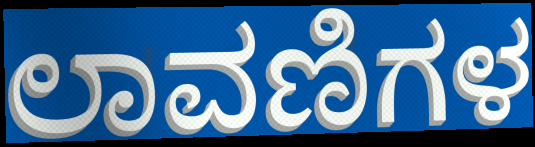
ಲಾವಣಿಗಳ